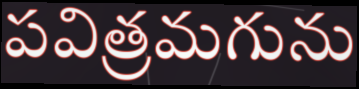
పవిత్రమగును